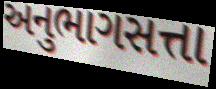
અનુભાગસત્તા